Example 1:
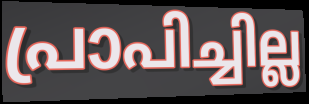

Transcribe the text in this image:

പ്രാപിച്ചില്ല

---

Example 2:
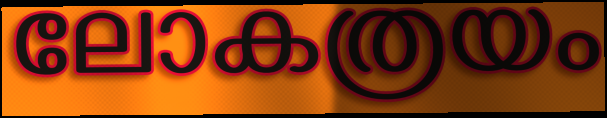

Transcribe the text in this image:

ലോകത്രയം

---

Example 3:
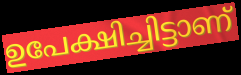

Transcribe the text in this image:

ഉപേക്ഷിച്ചിട്ടാണ്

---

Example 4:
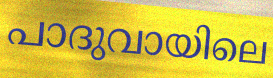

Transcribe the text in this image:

പാദുവായിലെ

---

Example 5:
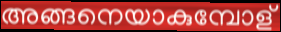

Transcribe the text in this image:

അങ്ങനെയാകുമ്പോള്